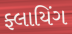
ફ્લાયિંગ